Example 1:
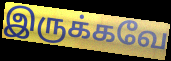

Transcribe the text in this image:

இருக்கவே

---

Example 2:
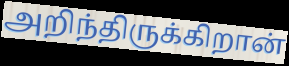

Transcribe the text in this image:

அறிந்திருக்கிறான்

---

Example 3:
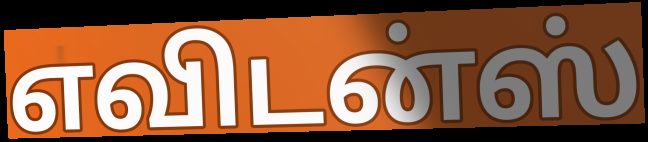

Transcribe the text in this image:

எவிடன்ஸ்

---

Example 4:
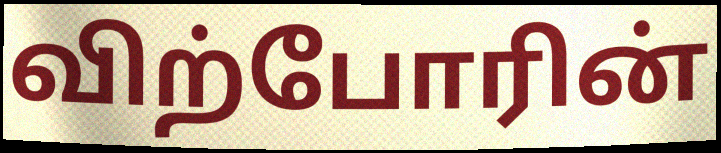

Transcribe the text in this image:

விற்போரின்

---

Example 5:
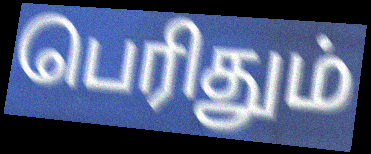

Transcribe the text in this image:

பெரிதும்